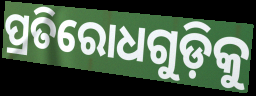
ପ୍ରତିରୋଧଗୁଡ଼ିକୁ